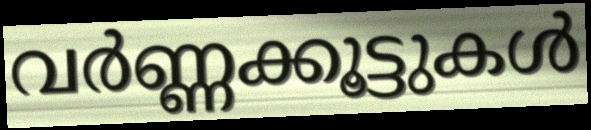
വർണ്ണക്കൂട്ടുകൾ